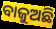
ବାଜୁଅଛି